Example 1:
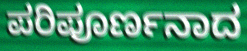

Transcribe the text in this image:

ಪರಿಪೂರ್ಣನಾದ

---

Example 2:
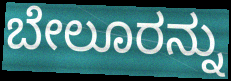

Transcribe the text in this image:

ಬೇಲೂರನ್ನು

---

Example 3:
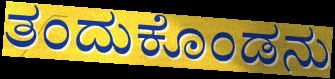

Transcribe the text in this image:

ತಂದುಕೊಂಡನು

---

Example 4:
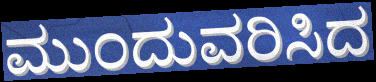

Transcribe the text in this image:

ಮುಂದುವರಿಸಿದ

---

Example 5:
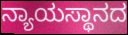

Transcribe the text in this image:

ನ್ಯಾಯಸ್ಥಾನದ